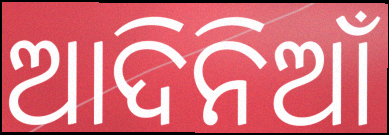
ଆଦିନିଆଁ